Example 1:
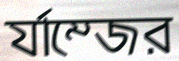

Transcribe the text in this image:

র্যাম্জের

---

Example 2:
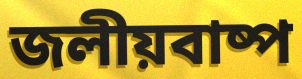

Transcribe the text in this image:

জলীয়বাষ্প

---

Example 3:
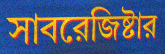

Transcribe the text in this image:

সাবরেজিষ্টার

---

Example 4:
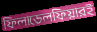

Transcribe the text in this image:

ফিলাডেলফিয়ারই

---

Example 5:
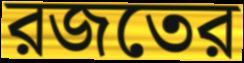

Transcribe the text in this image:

রজতের